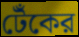
টেঁকের